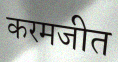
करमजीत